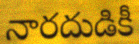
నారదుడికీ